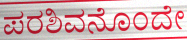
ಪರಶಿವನೊಂದೇ